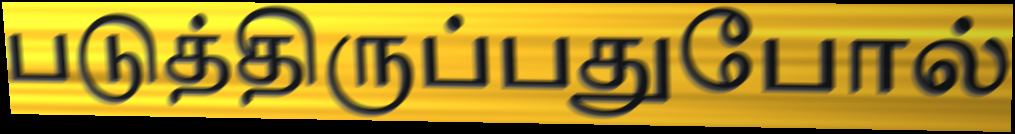
படுத்திருப்பதுபோல்